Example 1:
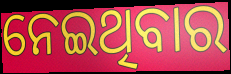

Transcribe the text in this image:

ନେଇଥିବାର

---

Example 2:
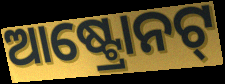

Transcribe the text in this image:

ଆଷ୍ଟ୍ରୋନଟ୍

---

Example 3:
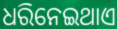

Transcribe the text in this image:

ଧରିନେଇଥାଏ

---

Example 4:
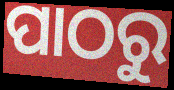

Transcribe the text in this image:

ପାଠରୁ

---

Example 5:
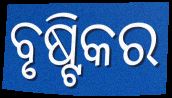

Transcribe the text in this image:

ବୃଷ୍ଟିକର